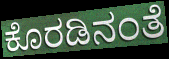
ಕೊರಡಿನಂತೆ